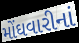
મોંઘવારીનાં